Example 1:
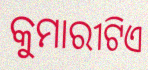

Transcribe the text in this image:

କୁମାରୀଟିଏ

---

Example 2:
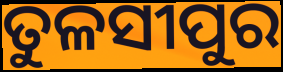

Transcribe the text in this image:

ତୁଳସୀପୁର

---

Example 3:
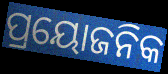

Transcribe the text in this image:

ପ୍ରୟୋଜନିକ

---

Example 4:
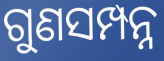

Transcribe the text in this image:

ଗୁଣସମ୍ପନ୍ନ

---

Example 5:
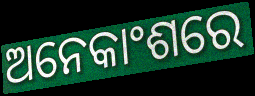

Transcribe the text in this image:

ଅନେକାଂଶରେ